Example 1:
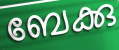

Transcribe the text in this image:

ബേക്കു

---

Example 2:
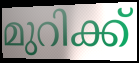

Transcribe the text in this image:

മുറിക്ക്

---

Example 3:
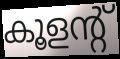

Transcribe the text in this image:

കൂളന്റ്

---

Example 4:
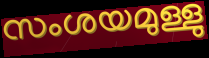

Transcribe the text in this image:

സംശയമുള്ളു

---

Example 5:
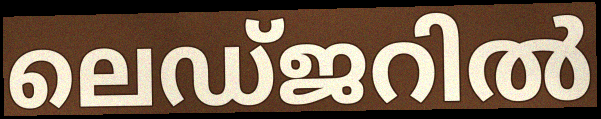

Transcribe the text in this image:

ലെഡ്ജറിൽ